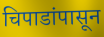
चिपाडांपासून